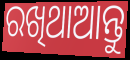
ରଖିଥାଆନ୍ତୁ